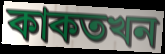
কাকতখন